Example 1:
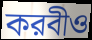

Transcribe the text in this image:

করবীও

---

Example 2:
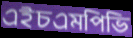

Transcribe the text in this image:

এইচএমপিভি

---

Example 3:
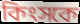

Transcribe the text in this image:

কিংসকে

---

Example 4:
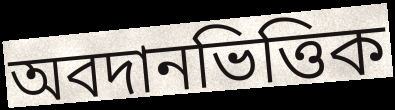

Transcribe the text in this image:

অবদানভিত্তিক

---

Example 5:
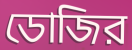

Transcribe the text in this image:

ডোজির